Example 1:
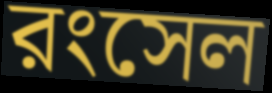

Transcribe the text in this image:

রংসেল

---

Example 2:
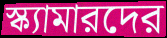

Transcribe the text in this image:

স্ক্যামারদের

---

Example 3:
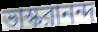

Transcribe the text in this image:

ভাস্করানন্দ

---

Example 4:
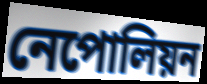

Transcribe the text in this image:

নেপোলিয়ন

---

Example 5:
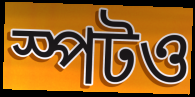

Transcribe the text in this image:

স্পটও